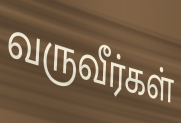
வருவீர்கள்